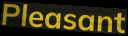
Pleasant